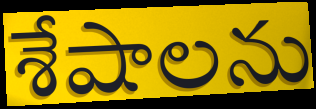
శేషాలను